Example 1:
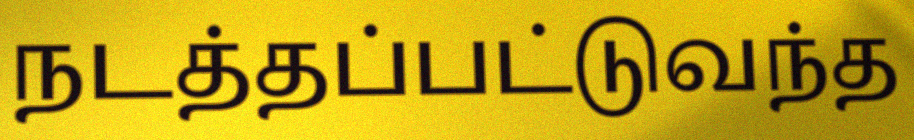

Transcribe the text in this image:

நடத்தப்பட்டுவந்த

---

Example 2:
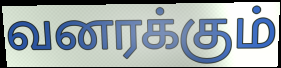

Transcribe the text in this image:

வனரக்கும்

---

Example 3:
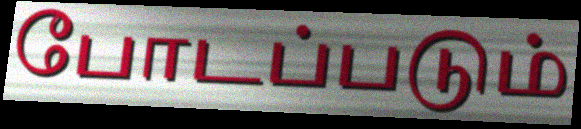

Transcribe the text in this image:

போடப்படும்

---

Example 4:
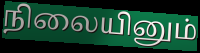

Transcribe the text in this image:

நிலையினும்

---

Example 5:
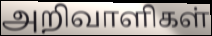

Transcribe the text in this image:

அறிவாளிகள்